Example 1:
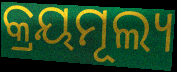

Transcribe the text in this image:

କ୍ରୟମୂଲ୍ୟ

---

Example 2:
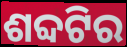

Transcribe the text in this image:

ଶବ୍ଦଟିର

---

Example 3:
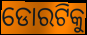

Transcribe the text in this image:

ଡୋରଟିକୁ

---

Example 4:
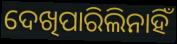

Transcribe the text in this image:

ଦେଖିପାରିଲିନାହିଁ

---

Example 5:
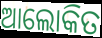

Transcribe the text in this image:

ଆଲୋକିତ